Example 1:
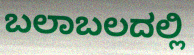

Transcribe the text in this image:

ಬಲಾಬಲದಲ್ಲಿ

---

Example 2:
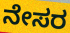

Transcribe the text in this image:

ನೇಸರ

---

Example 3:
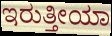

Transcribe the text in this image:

ಇರುತ್ತೀಯಾ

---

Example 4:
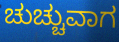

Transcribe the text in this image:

ಚುಚ್ಚುವಾಗ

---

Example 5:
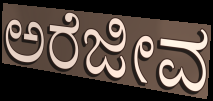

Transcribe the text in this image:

ಅರೆಜೀವ